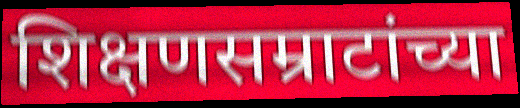
शिक्षणसम्राटांच्या